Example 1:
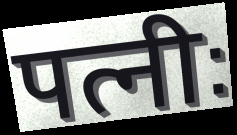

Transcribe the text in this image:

पत्नीः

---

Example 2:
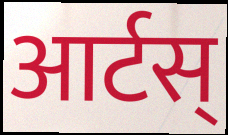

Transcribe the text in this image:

आर्टस्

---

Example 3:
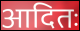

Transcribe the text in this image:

आदितः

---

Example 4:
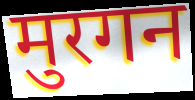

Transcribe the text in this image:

मुरगन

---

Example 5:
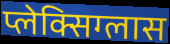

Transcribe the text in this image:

प्लेक्सिग्लास